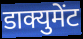
डाक्युमेंट